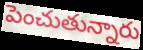
పెంచుతున్నారు